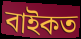
বাইকত